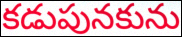
కడుపునకును